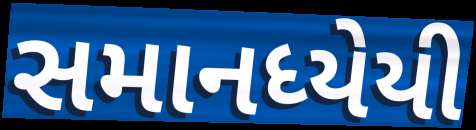
સમાનધ્યેયી